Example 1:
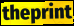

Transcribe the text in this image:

theprint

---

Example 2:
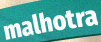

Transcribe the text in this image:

malhotra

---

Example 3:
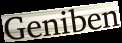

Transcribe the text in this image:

Geniben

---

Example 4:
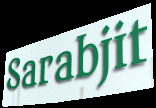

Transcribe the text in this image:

Sarabjit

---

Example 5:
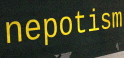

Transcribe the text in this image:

nepotism